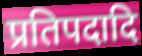
प्रतिपदादि